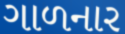
ગાળનાર